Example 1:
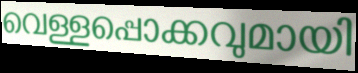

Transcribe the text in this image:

വെള്ളപ്പൊക്കവുമായി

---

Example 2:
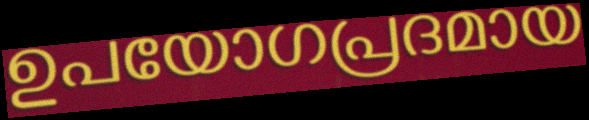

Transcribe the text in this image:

ഉപയോഗപ്രദമായ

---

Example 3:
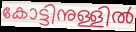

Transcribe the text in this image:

കോട്ടിനുള്ളിൽ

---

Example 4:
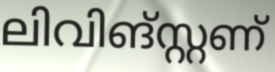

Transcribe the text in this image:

ലിവിങ്സ്റ്റണ്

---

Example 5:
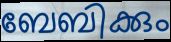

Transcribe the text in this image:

ബേബിക്കും